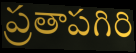
ప్రతాపగిరి